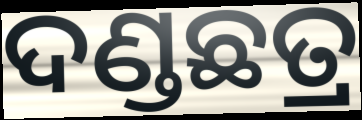
ଦଣ୍ଡଛତ୍ର